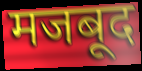
मजबूद